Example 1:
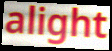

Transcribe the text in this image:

alight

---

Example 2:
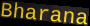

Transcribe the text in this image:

Bharana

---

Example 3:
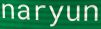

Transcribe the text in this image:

naryun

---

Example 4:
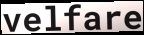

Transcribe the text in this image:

velfare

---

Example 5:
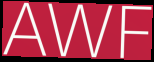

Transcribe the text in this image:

AWF